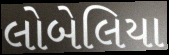
લોબેલિયા